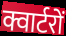
क्वार्टरों